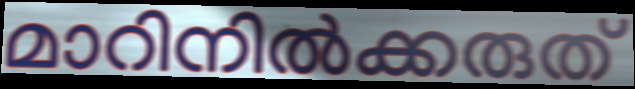
മാറിനിൽക്കരുത്